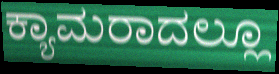
ಕ್ಯಾಮರಾದಲ್ಲೂ